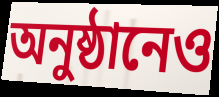
অনুষ্ঠানেও